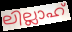
ലില്ലാഹ്